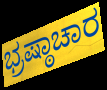
ಭ್ರಷ್ಠಾಚಾರ